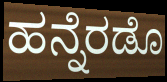
ಹನ್ನೆರಡೊ